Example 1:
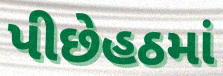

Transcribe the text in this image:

પીછેહઠમાં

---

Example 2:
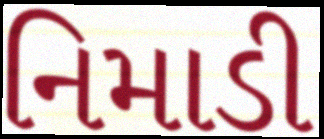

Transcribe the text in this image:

નિમાડી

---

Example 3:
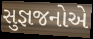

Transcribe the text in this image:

સુજ્ઞજનોએ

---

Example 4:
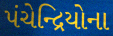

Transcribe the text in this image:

પંચેન્દ્રિયોના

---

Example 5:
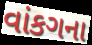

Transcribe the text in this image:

વાંકગના